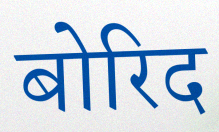
बोरिद